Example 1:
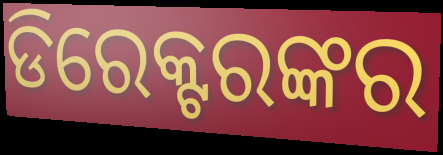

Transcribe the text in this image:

ଡିରେକ୍ଟରଙ୍କର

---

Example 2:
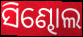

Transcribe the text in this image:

ସିଣ୍ଢୋଲ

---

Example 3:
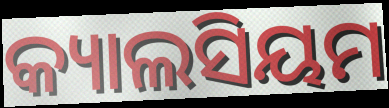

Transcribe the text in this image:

କ୍ୟାଲସିୟମ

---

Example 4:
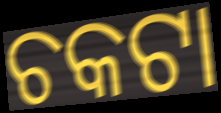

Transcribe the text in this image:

ଚକଟା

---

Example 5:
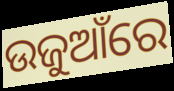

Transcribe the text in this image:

ଉଜୁଆଁରେ